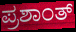
ಪ್ರಶಾಂತ್